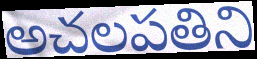
అచలపతిని